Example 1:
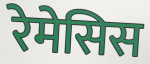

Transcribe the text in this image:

रेमेसिस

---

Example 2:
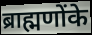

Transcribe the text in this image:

ब्राह्मणोंके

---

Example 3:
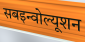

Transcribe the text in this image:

सबइन्वोल्यूशन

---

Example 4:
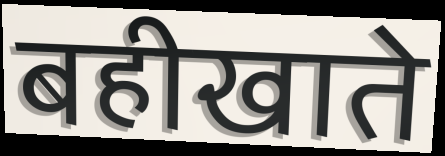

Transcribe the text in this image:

बहीखाते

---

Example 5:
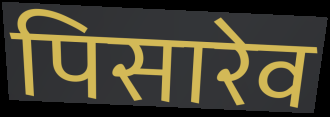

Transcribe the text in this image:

पिसारेव